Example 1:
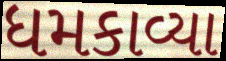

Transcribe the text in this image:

ધમકાવ્યા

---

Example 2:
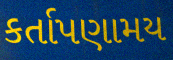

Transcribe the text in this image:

કર્તાપણામય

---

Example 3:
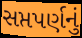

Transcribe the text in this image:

સપ્તપર્ણનું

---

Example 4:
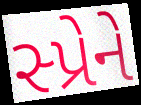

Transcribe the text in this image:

સ્પ્રેને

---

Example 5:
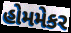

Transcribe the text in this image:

હોમમેકર